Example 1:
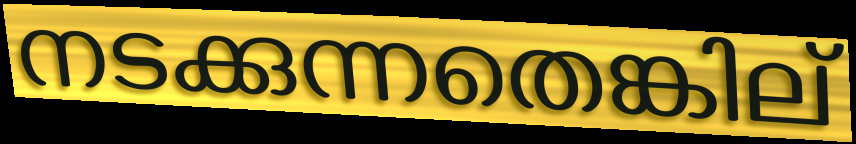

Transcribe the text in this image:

നടക്കുന്നതെങ്കില്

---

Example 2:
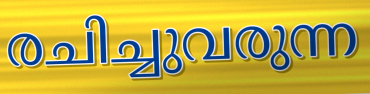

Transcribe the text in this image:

രചിച്ചുവരുന്ന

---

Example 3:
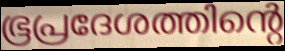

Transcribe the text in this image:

ഭൂപ്രദേശത്തിന്റെ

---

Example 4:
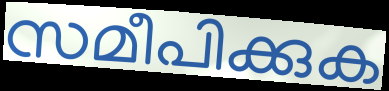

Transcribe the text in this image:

സമീപിക്കുക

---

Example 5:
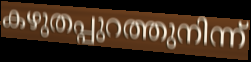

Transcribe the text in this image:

കഴുതപ്പുറത്തുനിന്ന്